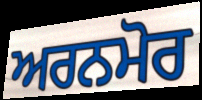
ਅਰਨਮੋਰ